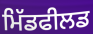
ਮਿੱਡਫੀਲਡ